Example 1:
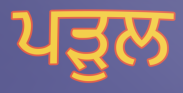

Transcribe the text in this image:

ਪੜੁਲ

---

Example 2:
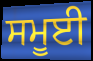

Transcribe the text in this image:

ਸਮੂਈ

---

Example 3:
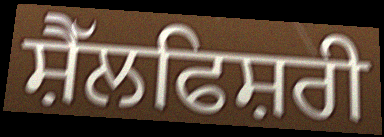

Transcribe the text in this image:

ਸ਼ੈੱਲਫਿਸ਼ਰੀ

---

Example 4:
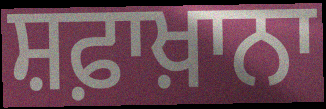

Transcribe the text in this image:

ਸ਼ਫ਼ਾਖ਼ਾਨਾ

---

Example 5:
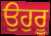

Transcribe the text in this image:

ਉਹੁਰੂ